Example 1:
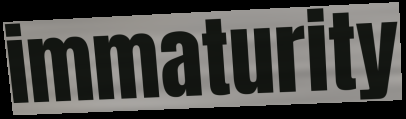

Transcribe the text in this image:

immaturity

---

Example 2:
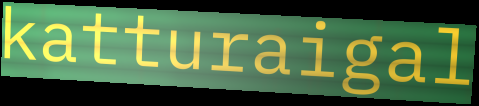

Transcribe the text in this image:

katturaigal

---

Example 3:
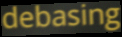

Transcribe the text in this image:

debasing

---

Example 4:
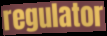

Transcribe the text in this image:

regulator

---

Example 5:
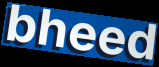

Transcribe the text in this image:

bheed